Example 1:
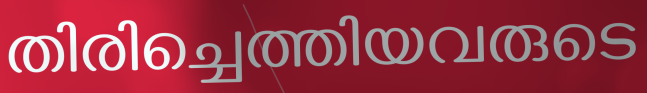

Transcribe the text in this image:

തിരിച്ചെത്തിയവരുടെ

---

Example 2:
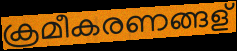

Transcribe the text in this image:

ക്രമീകരണങ്ങള്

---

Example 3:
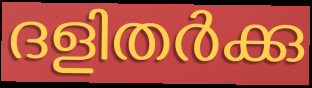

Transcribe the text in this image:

ദളിതർക്കു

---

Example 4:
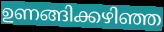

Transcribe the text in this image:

ഉണങ്ങിക്കഴിഞ്ഞ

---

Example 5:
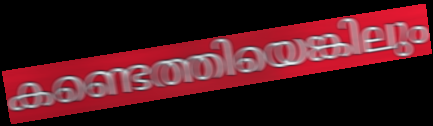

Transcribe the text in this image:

കണ്ടെത്തിയെങ്കിലും